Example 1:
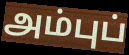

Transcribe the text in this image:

அம்புப்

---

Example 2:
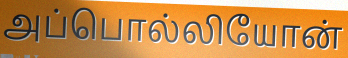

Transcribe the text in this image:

அப்பொல்லியோன்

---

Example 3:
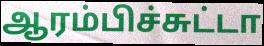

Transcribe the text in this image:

ஆரம்பிச்சுட்டா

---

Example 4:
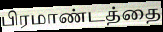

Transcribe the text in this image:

பிரமாண்டத்தை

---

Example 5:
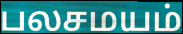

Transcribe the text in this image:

பலசமயம்